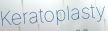
Keratoplasty